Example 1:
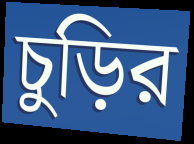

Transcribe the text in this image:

চুড়ির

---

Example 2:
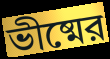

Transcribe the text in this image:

ভীষ্মের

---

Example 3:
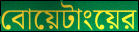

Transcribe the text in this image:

বোয়েটাংয়ের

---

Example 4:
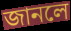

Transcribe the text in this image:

জানলে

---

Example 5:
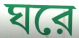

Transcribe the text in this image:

ঘরে